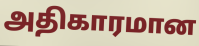
அதிகாரமான